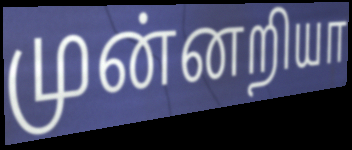
முன்னறியா